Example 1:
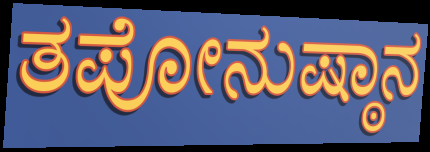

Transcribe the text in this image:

ತಪೋನುಷ್ಠಾನ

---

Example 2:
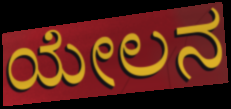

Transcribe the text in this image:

ಯೇಲನ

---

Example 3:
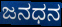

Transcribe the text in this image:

ಜನಧನ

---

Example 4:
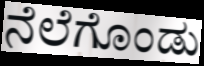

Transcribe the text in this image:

ನೆಲೆಗೊಂಡು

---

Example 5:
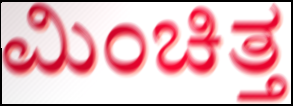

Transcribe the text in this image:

ಮಿಂಚಿತ್ತ